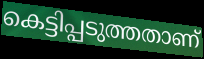
കെട്ടിപ്പടുത്തതാണ്